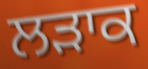
ਲੜਾਕ